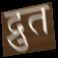
द्रुत